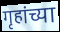
गृहांच्या